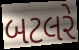
બટલરે